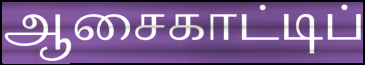
ஆசைகாட்டிப்